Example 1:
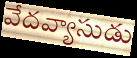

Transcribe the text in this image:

వేదవ్యాసుడు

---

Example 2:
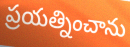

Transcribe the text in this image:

ప్రయత్నించాను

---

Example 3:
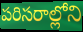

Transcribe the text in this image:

పరిసరాల్లోని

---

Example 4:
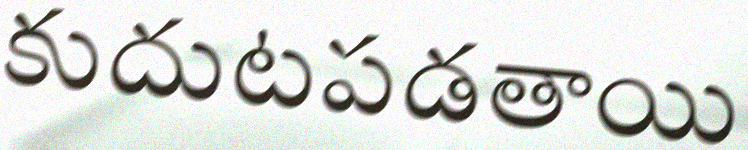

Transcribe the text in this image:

కుదుటపడతాయి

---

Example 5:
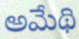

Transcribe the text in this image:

అమేథి